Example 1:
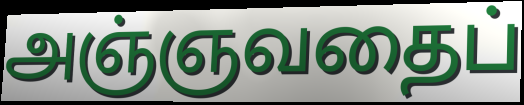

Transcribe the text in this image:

அஞ்ஞவதைப்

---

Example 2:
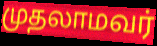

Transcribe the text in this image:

முதலாமவர்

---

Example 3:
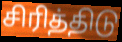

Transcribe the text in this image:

சிரித்திடு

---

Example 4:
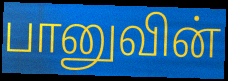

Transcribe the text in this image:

பானுவின்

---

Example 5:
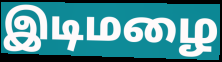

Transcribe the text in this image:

இடிமழை